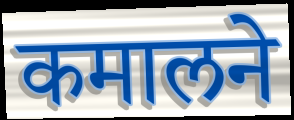
कमालने